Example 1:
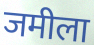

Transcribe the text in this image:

जमीला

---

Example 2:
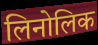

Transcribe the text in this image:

लिनोलिक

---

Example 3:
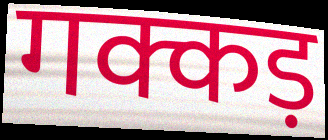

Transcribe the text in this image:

गक्कड़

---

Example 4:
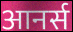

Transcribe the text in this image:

आनर्स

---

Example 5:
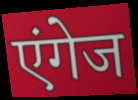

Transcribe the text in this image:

एंगेज